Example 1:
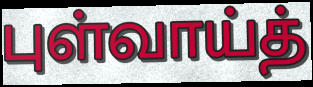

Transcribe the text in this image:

புள்வாய்த்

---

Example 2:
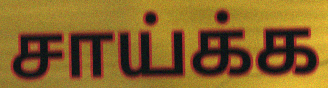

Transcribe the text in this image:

சாய்க்க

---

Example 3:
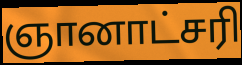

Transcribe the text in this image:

ஞானாட்சரி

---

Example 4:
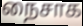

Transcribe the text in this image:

நைசாக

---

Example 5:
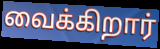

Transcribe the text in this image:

வைக்கிறார்